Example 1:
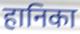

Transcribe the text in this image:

हानिका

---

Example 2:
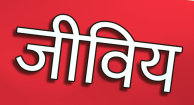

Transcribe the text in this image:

जीविय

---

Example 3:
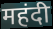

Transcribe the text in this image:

महंदी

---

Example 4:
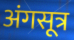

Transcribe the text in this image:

अंगसूत्र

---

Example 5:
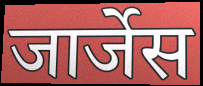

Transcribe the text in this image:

जार्जेस